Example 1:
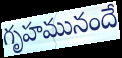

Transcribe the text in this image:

గృహమునందే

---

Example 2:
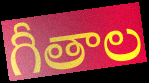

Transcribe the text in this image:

గీతాల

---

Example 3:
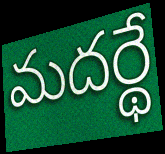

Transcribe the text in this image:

మదర్థే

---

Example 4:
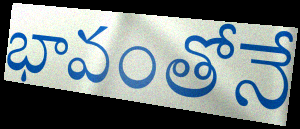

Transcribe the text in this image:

భావంతోనే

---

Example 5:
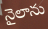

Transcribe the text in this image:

నైలాను